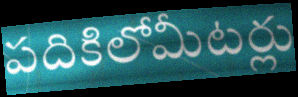
పదికిలోమీటర్లు